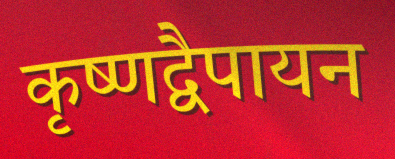
कृष्णद्वैपायन